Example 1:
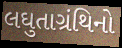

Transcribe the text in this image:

લઘુતાગ્રંથિનો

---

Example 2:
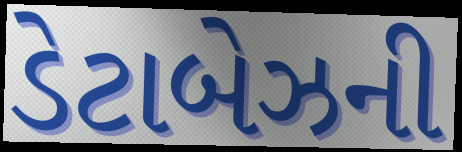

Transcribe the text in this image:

ડેટાબેઝની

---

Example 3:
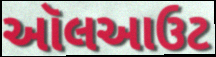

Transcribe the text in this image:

ઑલઆઉટ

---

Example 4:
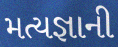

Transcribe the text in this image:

મત્યજ્ઞાની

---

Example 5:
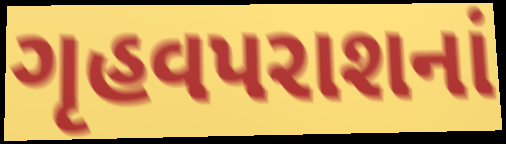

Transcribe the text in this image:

ગૃહવપરાશનાં